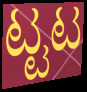
ಟ್ಟಟ